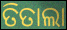
ତିତାଲା